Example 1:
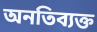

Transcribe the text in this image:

অনতিব্যক্ত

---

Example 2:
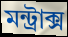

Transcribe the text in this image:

মন্ট্রাক্স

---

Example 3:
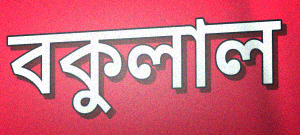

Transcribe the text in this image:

বকুলাল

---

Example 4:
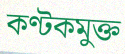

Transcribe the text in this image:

কণ্টকমুক্ত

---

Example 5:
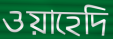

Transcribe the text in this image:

ওয়াহেদি